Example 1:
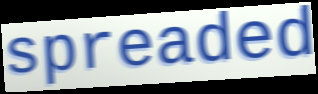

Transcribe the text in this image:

spreaded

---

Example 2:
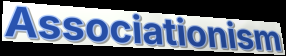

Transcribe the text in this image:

Associationism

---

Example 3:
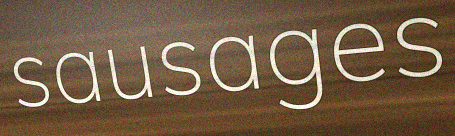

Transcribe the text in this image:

sausages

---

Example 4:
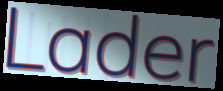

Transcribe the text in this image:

Lader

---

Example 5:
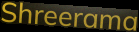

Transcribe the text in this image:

Shreerama